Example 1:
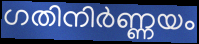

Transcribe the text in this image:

ഗതിനിർണ്ണയം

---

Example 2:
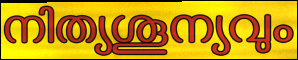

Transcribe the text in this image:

നിത്യശൂന്യവും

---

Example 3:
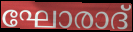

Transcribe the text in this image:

ഘോരാദ്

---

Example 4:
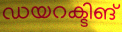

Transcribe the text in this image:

ഡയറക്ടിങ്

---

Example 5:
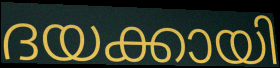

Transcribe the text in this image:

ദയക്കായി